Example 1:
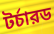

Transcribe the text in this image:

টর্চারড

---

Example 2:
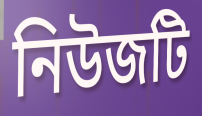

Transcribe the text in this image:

নিউজটি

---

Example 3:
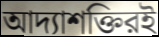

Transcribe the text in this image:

আদ্যাশক্তিরই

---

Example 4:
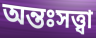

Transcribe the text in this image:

অন্তঃসত্ত্বা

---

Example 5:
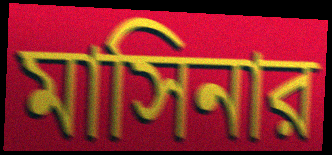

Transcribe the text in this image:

মাসিনার